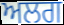
ਅਲਗ